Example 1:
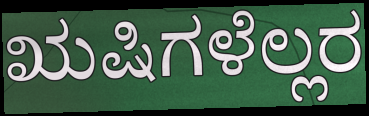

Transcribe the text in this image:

ಋಷಿಗಳೆಲ್ಲರ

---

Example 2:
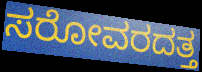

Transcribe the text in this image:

ಸರೋವರದತ್ತ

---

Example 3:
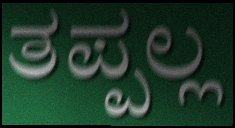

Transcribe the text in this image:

ತಪ್ಪಲ್ಲ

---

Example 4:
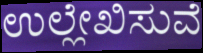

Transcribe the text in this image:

ಉಲ್ಲೇಖಿಸುವೆ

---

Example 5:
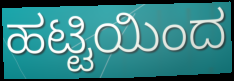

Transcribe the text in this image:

ಹಟ್ಟಿಯಿಂದ